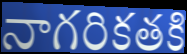
నాగరికతకి